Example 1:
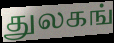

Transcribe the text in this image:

துலகங்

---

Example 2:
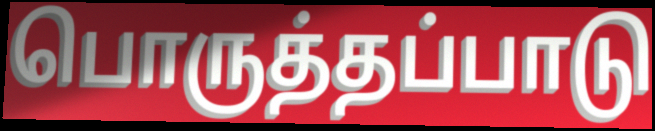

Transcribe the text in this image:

பொருத்தப்பாடு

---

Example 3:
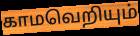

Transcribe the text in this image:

காமவெறியும்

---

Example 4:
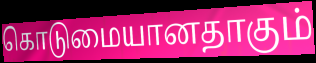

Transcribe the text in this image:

கொடுமையானதாகும்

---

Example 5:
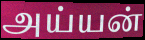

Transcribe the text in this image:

அய்யன்